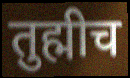
तुह्मीच